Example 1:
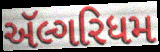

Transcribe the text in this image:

ઍલ્ગરિધમ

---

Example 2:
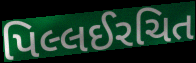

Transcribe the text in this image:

પિલ્લઈરચિત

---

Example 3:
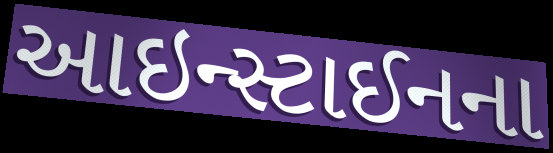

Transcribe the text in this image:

આઇન્સ્ટાઈનના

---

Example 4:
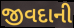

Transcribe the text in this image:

જીવદાની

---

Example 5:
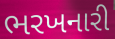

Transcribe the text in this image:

ભરખનારી